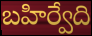
బహిర్వేది